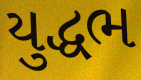
યુદ્ધભ